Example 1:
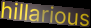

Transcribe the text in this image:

hillarious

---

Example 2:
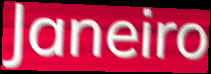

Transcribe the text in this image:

Janeiro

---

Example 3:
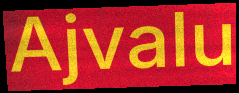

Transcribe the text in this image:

Ajvalu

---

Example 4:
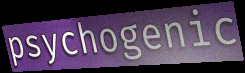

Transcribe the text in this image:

psychogenic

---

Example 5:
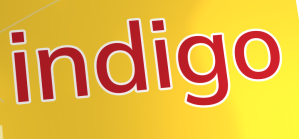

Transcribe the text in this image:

indigo